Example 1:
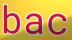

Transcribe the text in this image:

bac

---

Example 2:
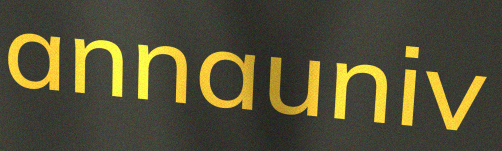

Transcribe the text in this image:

annauniv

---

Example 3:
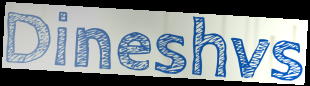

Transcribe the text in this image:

Dineshvs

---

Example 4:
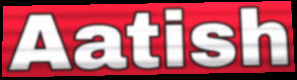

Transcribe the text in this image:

Aatish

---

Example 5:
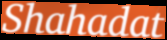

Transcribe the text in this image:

Shahadat